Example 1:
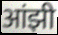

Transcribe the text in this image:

आंझी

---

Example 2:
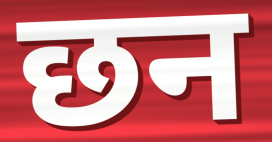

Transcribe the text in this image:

छन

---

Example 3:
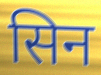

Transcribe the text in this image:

सिन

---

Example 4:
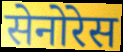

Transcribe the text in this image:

सेनोरेस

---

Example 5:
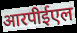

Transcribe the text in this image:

आरपीईएल